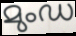
മുംഡ